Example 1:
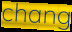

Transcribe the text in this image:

chang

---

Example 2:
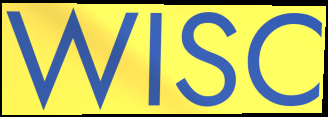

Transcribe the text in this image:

WISC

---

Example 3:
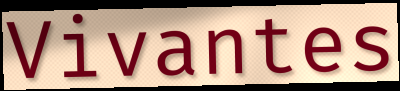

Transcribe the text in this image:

Vivantes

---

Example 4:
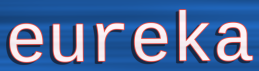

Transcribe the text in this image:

eureka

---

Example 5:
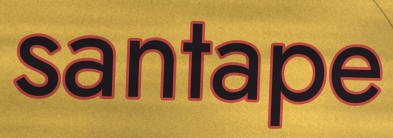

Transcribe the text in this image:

santape